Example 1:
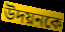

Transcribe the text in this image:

উদয়নকে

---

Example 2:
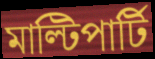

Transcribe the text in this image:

মাল্টিপার্টি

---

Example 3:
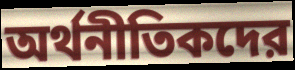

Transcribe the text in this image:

অর্থনীতিকদের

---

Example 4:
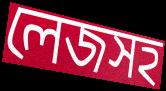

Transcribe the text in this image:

লেজসহ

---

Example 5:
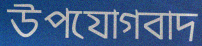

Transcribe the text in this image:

উপযোগবাদ